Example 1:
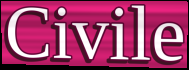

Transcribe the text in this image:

Civile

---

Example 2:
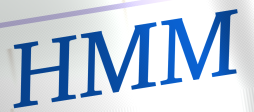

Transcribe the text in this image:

HMM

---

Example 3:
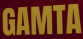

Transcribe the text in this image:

GAMTA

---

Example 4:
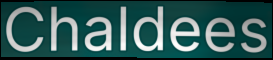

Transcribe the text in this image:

Chaldees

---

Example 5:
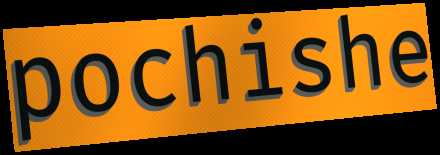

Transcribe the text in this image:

pochishe